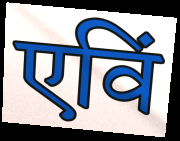
एविं